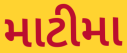
માટીમા